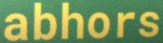
abhors